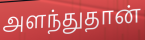
அளந்துதான்